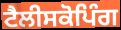
ਟੈਲੀਸਕੋਪਿੰਗ